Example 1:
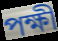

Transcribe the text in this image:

পক্ষী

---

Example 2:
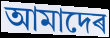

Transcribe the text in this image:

আমাদেৰ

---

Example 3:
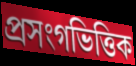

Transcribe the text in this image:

প্ৰসংগভিত্তিক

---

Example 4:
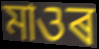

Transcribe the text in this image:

মাওৰ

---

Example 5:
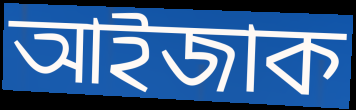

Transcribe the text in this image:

আইজাক